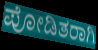
ಪೋಡಿತರಾಗಿ